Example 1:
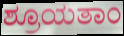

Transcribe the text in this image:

ಶ್ರೂಯತಾಂ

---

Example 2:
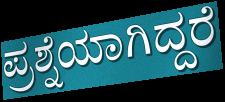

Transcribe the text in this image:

ಪ್ರಶ್ನೆಯಾಗಿದ್ದರೆ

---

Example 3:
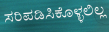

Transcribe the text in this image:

ಸರಿಪಡಿಸಿಕೊಳ್ಳಲಿಲ್ಲ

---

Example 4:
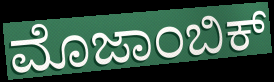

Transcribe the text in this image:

ಮೊಜಾಂಬಿಕ್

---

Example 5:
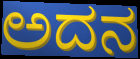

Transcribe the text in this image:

ಅದನ